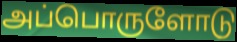
அப்பொருளோடு